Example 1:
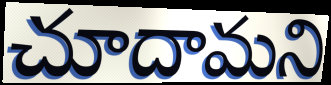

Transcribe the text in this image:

చూదామని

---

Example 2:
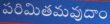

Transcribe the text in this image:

పరిమితమవుదాం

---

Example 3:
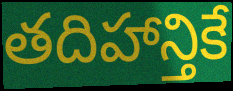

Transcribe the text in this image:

తదిహాన్తికే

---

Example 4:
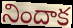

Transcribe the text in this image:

నిందాక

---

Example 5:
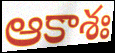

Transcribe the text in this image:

ఆకాశః